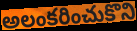
అలంకరించుకొని